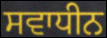
ਸਵਾਧੀਨ